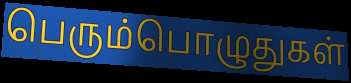
பெரும்பொழுதுகள்